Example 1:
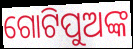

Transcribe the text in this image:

ଗୋଟିପୁଅଙ୍କ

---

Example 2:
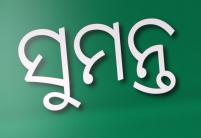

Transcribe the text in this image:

ସୁମନ୍ତ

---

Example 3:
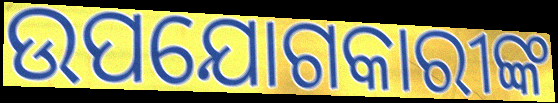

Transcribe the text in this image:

ଉପଯୋଗକାରୀଙ୍କ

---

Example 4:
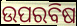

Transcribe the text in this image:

ଉପରବିଷ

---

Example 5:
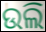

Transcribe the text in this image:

ଉଲି